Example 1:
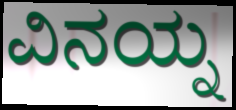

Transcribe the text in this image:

ವಿನಯ್ನ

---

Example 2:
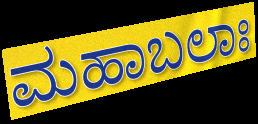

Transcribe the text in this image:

ಮಹಾಬಲಾಃ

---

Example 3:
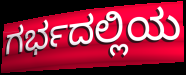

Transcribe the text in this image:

ಗರ್ಭದಲ್ಲಿಯ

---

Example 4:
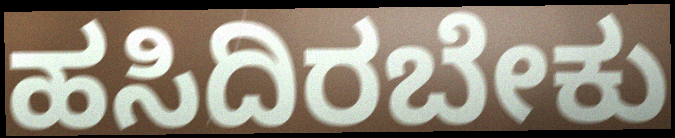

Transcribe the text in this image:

ಹಸಿದಿರಬೇಕು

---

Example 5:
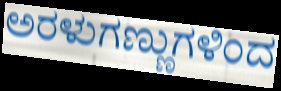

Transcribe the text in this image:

ಅರಳುಗಣ್ಣುಗಳಿಂದ